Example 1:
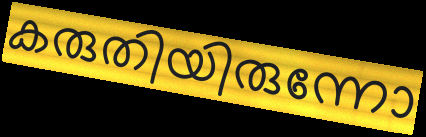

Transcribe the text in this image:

കരുതിയിരുന്നോ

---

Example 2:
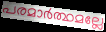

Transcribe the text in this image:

പരമാർത്ഥമല്ലേ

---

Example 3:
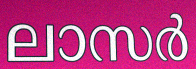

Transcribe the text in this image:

ലാസർ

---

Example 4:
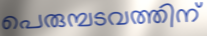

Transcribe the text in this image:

പെരുമ്പടവത്തിന്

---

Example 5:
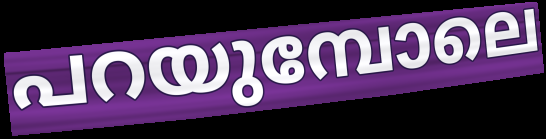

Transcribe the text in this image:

പറയുമ്പോലെ